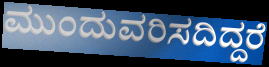
ಮುಂದುವರಿಸದಿದ್ದರೆ